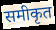
समीकृत